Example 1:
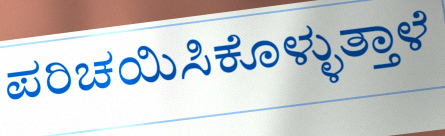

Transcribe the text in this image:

ಪರಿಚಯಿಸಿಕೊಳ್ಳುತ್ತಾಳೆ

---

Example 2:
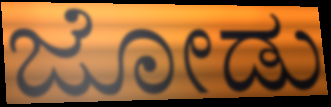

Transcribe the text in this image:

ಜೋಡು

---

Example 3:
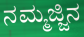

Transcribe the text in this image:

ನಮ್ಮಜ್ಜಿನ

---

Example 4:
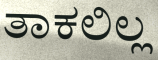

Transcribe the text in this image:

ತಾಕಲಿಲ್ಲ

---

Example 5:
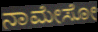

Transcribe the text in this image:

ನಾಮೇಸೋ